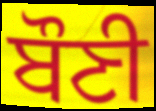
ਬੌਣੀ